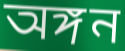
অঙ্গন